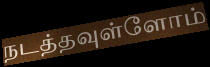
நடத்தவுள்ளோம்